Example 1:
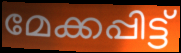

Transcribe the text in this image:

മേക്കപ്പിട്ട്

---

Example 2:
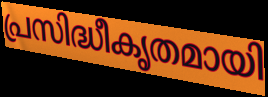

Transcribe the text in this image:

പ്രസിദ്ധീകൃതമായി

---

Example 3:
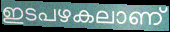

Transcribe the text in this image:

ഇടപഴകലാണ്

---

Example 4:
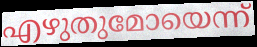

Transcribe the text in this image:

എഴുതുമോയെന്ന്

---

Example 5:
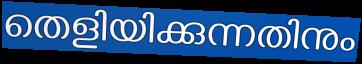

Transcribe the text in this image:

തെളിയിക്കുന്നതിനും